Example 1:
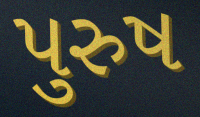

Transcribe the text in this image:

પુરુષ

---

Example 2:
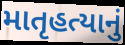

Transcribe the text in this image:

માતૃહત્યાનું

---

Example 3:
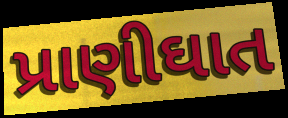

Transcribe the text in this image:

પ્રાણીઘાત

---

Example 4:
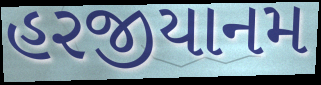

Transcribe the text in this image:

હરજીયાનમ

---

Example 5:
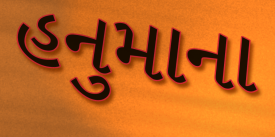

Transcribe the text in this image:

હનુમાના